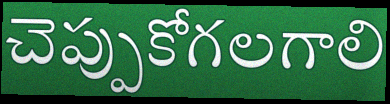
చెప్పుకోగలగాలి